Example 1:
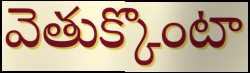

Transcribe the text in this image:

వెతుక్కొంటా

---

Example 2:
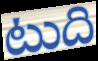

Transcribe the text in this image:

టుది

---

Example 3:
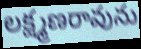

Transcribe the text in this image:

లక్ష్మణరావును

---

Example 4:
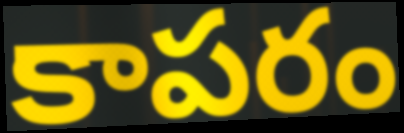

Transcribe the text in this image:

కాపరం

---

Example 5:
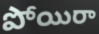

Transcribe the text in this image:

పోయిరా